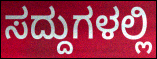
ಸದ್ದುಗಳಲ್ಲಿ